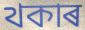
থকাৰ